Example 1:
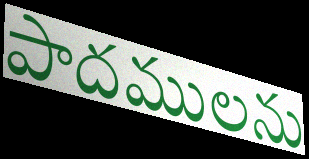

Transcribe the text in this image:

పాదములను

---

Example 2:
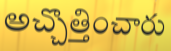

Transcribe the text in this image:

అచ్చొత్తించారు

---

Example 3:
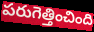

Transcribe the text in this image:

పరుగెత్తించింది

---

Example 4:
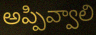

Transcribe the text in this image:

అప్పివ్వాలి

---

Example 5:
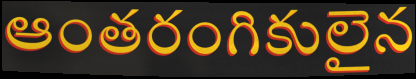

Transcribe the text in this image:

ఆంతరంగికులైన